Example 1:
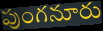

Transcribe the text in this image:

పుంగనూరు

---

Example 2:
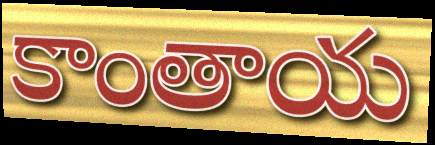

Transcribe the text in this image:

కాంతాయ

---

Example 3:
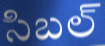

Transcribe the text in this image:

సిబల్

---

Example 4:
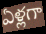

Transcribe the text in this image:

ఏళ్లగా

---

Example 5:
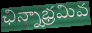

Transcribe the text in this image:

ఛిన్నాభ్రమివ